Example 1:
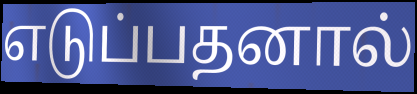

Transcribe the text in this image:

எடுப்பதனால்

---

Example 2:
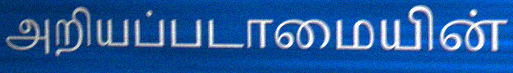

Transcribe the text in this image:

அறியப்படாமையின்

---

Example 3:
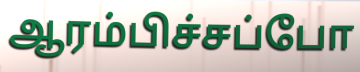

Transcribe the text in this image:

ஆரம்பிச்சப்போ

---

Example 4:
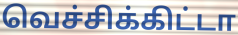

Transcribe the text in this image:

வெச்சிக்கிட்டா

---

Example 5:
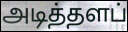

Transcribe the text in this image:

அடித்தளப்